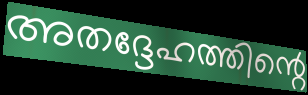
അതദ്ദേഹത്തിന്റെ